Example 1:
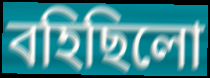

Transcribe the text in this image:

বহিছিলো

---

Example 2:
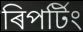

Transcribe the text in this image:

ৰিপৰ্টিং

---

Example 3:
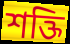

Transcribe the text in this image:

শক্তি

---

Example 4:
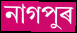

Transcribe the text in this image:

নাগপুৰ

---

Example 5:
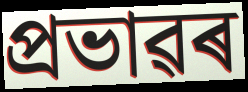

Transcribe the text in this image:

প্ৰভাৱৰ